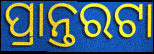
ପ୍ରାନ୍ତରଟା